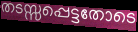
തടസ്സപ്പെട്ടതോടെ